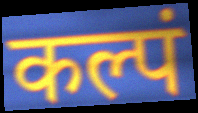
कल्पं